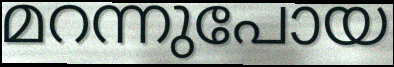
മറന്നുപോയ